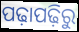
ପଢ଼ାପଢ଼ିରୁ